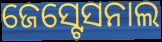
ଜେସ୍ଟେସନାଲ